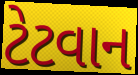
ટેટવાન